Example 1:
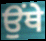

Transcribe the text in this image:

ਉੰਥੇ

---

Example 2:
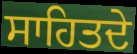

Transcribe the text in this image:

ਸਾਹਿਤਦੇ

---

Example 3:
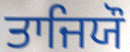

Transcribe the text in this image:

ਤਾਜਿਯੌ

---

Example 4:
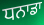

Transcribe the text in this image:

ਧਨਾਡਾ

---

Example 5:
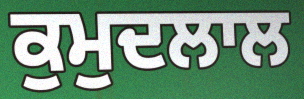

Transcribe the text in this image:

ਕੁਮੁਦਲਾਲ